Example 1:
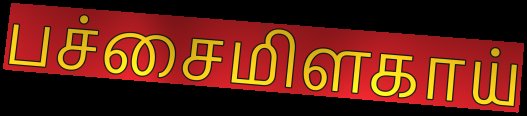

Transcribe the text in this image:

பச்சைமிளகாய்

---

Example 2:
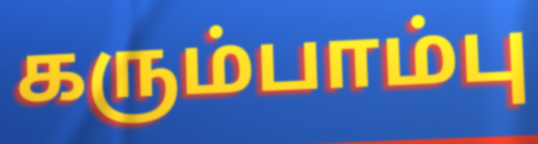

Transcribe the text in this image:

கரும்பாம்பு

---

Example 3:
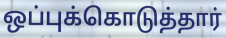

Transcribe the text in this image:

ஒப்புக்கொடுத்தார்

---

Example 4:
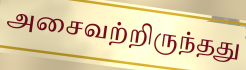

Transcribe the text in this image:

அசைவற்றிருந்தது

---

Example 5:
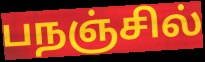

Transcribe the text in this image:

பநஞ்சில்